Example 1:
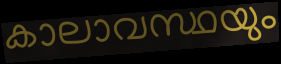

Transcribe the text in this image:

കാലാവസ്ഥയും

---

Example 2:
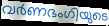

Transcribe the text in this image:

വർണഭംഗിയുടെ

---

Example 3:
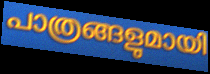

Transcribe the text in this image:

പാത്രങ്ങളുമായി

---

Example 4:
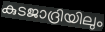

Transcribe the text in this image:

കുടജാദ്രിയിലും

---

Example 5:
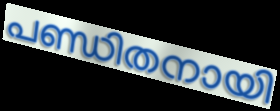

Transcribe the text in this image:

പണ്ഡിതനായി